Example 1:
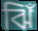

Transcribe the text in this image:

ঝিঁ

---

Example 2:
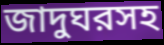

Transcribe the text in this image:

জাদুঘরসহ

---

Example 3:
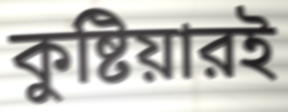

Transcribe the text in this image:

কুষ্টিয়ারই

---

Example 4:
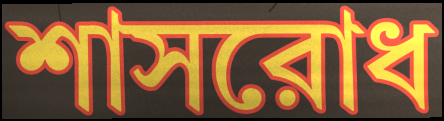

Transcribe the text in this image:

শাসরোধ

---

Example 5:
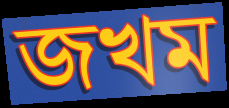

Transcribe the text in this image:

জখম